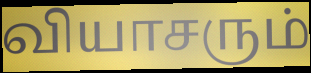
வியாசரும்